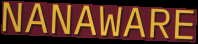
NANAWARE